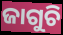
ଜାଗୁଚି